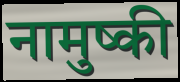
नामुष्की